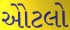
એોટલો